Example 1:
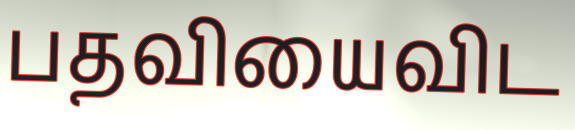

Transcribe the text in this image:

பதவியைவிட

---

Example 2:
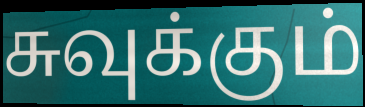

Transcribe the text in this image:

சுவுக்கும்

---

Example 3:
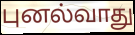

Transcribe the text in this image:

புனல்வாது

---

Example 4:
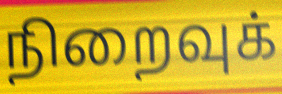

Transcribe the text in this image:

நிறைவுக்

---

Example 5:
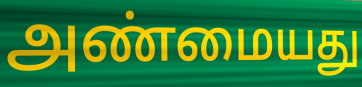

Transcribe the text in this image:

அண்மையது